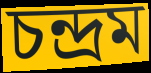
চন্দ্রম